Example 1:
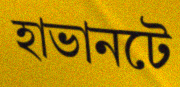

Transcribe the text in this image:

হাভানটে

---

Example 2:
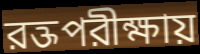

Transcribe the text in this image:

রক্তপরীক্ষায়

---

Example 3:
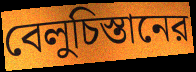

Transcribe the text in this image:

বেলুচিস্তানের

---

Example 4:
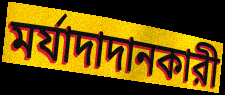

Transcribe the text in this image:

মর্যাদাদানকারী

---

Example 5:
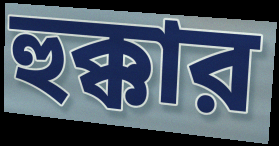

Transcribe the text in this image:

হুক্কার